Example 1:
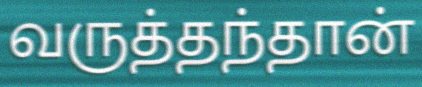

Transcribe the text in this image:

வருத்தந்தான்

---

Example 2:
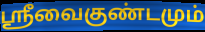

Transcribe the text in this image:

ஸ்ரீவைகுண்டமும்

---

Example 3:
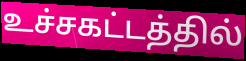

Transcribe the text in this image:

உச்சகட்டத்தில்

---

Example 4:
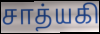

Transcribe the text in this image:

சாத்யகி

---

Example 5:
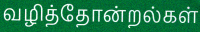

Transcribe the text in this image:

வழித்தோன்றல்கள்